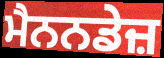
ਮੈਨਨਡੇਜ਼